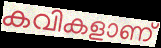
കവികളാണ്